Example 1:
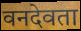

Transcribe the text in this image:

वनदेवता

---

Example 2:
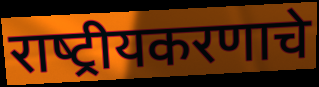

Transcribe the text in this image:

राष्ट्रीयकरणाचे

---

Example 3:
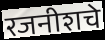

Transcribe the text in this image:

रजनीशचे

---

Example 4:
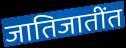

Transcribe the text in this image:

जातिजातींत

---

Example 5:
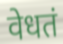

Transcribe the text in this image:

वेधतं